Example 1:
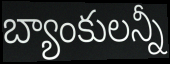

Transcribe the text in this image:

బ్యాంకులన్నీ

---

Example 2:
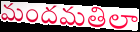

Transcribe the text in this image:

మందమతిలా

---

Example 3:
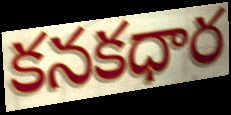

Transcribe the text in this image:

కనకధార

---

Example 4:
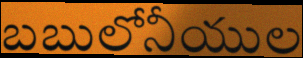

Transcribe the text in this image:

బబులోనీయుల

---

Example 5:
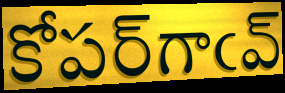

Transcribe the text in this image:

కోపర్‌గాఁవ్